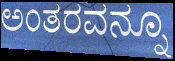
ಅಂತರವನ್ನೂ